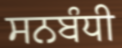
ਸਨਬੰਧੀ